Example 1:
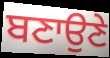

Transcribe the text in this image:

ਬਣਾਉਣੇ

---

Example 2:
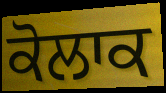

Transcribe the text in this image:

ਕੋਲਾਕ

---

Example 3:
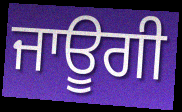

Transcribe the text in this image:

ਜਾਊਗੀ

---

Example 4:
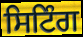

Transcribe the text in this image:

ਸਿਟਿੰਗ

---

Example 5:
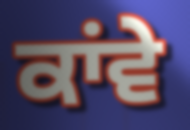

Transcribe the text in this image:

ਕਾਂਵੇ